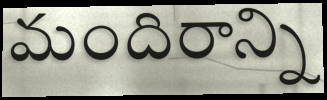
మందిరాన్ని